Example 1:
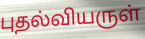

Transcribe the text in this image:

புதல்வியருள்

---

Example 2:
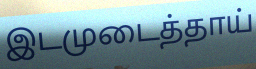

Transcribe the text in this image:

இடமுடைத்தாய்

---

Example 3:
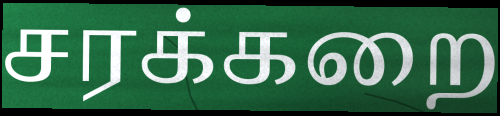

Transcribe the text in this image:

சரக்கறை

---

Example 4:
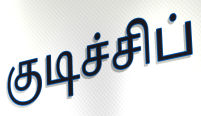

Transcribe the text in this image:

குடிச்சிப்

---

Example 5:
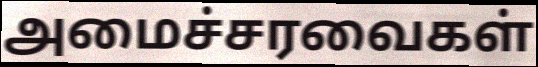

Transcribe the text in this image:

அமைச்சரவைகள்